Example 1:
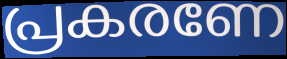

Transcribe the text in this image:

പ്രകരണേ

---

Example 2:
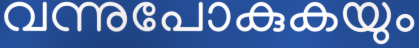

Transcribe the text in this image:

വന്നുപോകുകയും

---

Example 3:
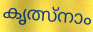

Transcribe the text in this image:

കൃത്സ്നാം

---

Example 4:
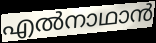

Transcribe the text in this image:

എൽനാഥാൻ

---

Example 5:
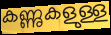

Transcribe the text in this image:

കണ്ണുകളുള്ള